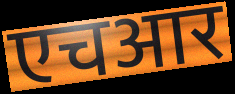
एचआर